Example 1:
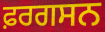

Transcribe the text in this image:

ਫ਼ਰਗਸਨ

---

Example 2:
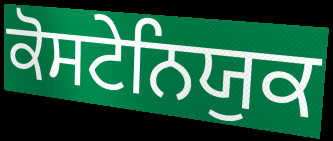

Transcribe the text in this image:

ਕੋਸਟੇਨਿਯੁਕ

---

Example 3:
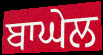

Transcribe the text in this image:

ਬਾਘੇਲ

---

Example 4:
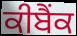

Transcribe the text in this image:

ਕੀਬੈਂਕ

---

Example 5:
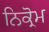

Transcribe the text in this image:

ਨਿਕ੍ਰੋਮ